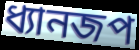
ধ্যানজপ